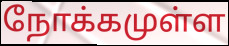
நோக்கமுள்ள